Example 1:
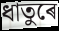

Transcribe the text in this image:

ধাতুৰে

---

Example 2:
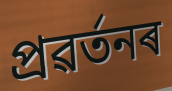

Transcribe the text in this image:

প্ৰৱৰ্তনৰ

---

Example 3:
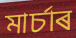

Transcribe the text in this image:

মাৰ্চাৰ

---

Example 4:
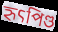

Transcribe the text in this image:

হৃৎপিণ্ড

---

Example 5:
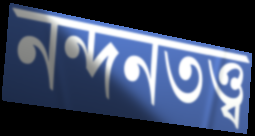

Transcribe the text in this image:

নন্দনতত্ত্ব